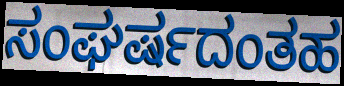
ಸಂಘರ್ಷದಂತಹ